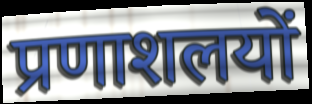
प्रणाशलयों